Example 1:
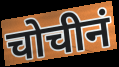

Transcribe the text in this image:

चोचीनं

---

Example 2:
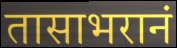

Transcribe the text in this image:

तासाभरानं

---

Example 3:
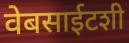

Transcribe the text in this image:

वेबसाईटशी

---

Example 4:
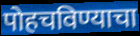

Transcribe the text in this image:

पोहचविण्याचा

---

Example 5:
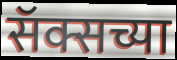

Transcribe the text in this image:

सॅक्सच्या